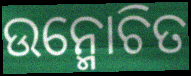
ଉନ୍ମୋଚିତ